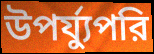
উপর্য্যুপরি